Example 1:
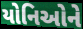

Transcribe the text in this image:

યોનિઓને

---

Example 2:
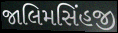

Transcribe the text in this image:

જાલિમસિંહજી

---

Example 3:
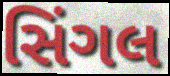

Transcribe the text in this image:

સિંગલ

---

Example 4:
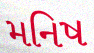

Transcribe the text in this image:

મનિષ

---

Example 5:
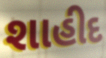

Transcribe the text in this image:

શાહીદ